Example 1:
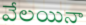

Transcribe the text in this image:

వేలయినా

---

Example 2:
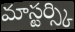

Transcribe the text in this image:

మాస్టర్స్కి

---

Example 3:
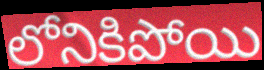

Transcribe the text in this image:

లోనికిపోయి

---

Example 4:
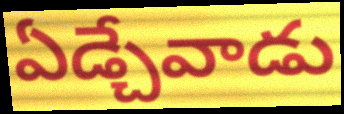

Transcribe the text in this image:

ఏడ్చేవాడు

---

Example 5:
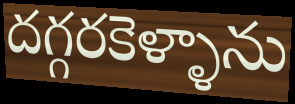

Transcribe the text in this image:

దగ్గరకెళ్ళాను